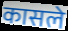
कासले